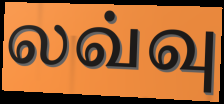
லவ்வு